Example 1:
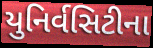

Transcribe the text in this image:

યુનિર્વસિટીના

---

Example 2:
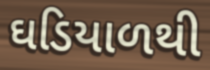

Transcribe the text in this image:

ઘડિયાળથી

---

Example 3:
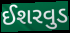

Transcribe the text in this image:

ઈશરવુડ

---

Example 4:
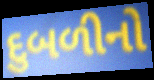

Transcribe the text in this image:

દુબળીનો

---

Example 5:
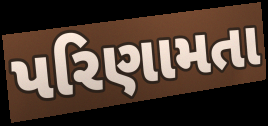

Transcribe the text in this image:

પરિણામતા